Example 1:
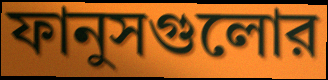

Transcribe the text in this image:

ফানুসগুলোর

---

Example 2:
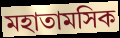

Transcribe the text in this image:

মহাতামসিক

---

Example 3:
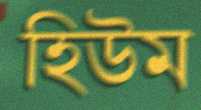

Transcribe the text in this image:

হিউম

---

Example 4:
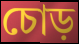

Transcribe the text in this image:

চোড়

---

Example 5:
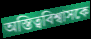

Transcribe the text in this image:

অস্তিত্ববিশ্বাসকে